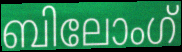
ബിലോംഗ്